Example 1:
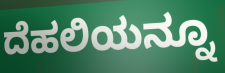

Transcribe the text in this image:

ದೆಹಲಿಯನ್ನೂ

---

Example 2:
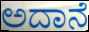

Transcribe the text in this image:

ಅದಾನೆ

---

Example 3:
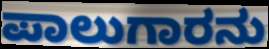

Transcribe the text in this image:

ಪಾಲುಗಾರನು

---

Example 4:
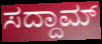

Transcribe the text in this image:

ಸದ್ದಾಮ್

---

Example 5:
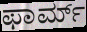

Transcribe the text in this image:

ಫಾರ್ಮ್